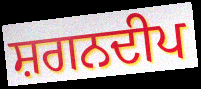
ਸ਼ਗਨਦੀਪ